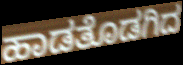
ಹಾಡತೊಡಗಿದ